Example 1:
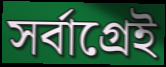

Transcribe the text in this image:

সর্বাগ্রেই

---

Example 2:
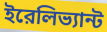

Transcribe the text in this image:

ইরেলিভ্যান্ট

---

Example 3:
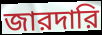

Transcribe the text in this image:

জারদারি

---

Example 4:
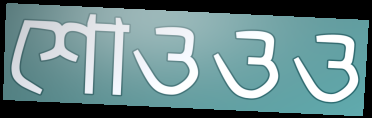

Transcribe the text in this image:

শোওওও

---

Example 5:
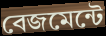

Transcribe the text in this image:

বেজমেন্টে